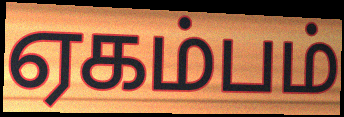
ஏகம்பம்